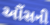
ઔંસની